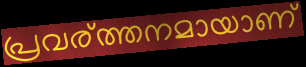
പ്രവര്ത്തനമായാണ്